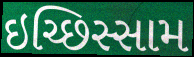
ઇચ્છિસ્સામ